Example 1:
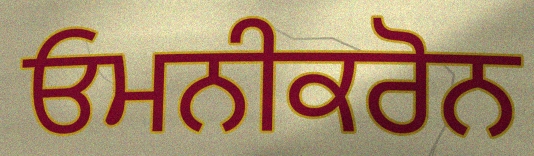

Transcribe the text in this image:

ਓਮਨੀਕਰੋਨ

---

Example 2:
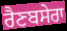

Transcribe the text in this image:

ਰੈਣਬਸੇਰਾ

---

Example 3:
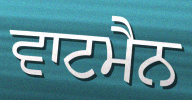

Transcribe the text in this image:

ਵਾਟਮੈਨ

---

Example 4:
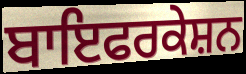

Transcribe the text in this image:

ਬਾਇਫਰਕੇਸ਼ਨ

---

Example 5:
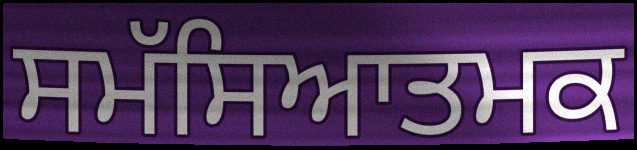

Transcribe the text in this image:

ਸਮੱਸਿਆਤਮਕ